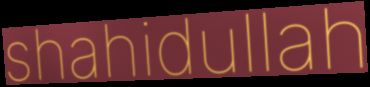
shahidullah